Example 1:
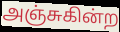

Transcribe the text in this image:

அஞ்சுகின்ற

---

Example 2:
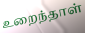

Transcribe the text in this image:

உறைந்தாள்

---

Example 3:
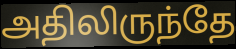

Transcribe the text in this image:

அதிலிருந்தே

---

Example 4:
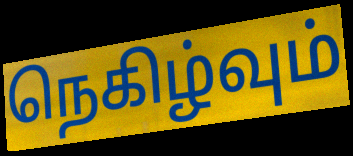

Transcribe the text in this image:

நெகிழ்வும்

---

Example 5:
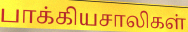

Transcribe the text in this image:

பாக்கியசாலிகள்